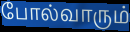
போல்வாரும்